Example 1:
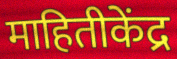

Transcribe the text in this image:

माहितीकेंद्र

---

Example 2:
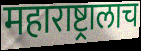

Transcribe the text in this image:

महाराष्ट्रालाच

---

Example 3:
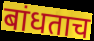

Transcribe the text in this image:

बांधताच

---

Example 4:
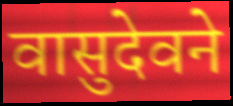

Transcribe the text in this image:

वासुदेवने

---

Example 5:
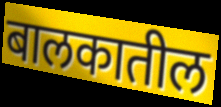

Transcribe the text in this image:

बालकातील